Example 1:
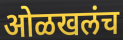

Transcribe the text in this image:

ओळखलंच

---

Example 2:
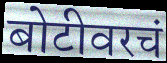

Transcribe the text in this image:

बोटीवरचं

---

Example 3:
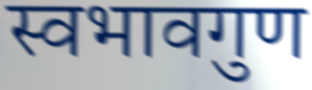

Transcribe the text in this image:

स्वभावगुण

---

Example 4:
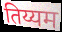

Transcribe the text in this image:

तिय्यम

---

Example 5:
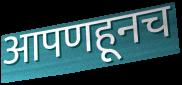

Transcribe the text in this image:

आपणहूनच